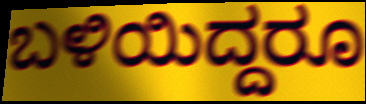
ಬಳಿಯಿದ್ದರೂ